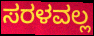
ಸರಳವಲ್ಲ